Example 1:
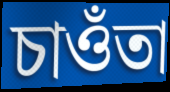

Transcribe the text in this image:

চাওঁতা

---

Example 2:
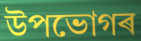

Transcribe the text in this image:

উপভোগৰ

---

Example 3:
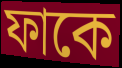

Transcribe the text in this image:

ফাকে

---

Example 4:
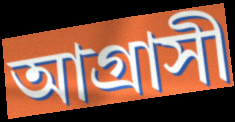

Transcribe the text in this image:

আগ্ৰাসী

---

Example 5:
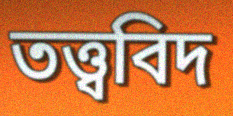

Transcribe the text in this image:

তত্ত্ববিদ